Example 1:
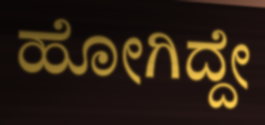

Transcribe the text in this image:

ಹೋಗಿದ್ದೇ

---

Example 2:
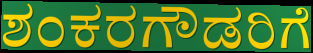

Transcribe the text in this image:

ಶಂಕರಗೌಡರಿಗೆ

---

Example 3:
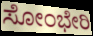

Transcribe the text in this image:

ಸೋಂಭೇರಿ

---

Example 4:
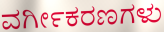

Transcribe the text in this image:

ವರ್ಗೀಕರಣಗಳು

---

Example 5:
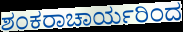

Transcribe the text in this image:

ಶಂಕರಾಚಾರ್ಯರಿಂದ